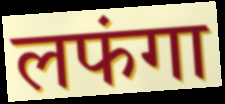
लफंगा